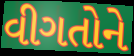
વીગતોને